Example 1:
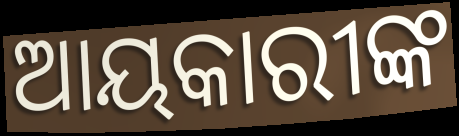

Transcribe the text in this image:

ଆୟକାରୀଙ୍କ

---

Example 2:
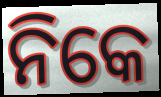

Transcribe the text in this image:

ନିକେ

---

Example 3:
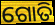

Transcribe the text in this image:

ଗୋତି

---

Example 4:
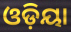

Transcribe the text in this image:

ଓଡ଼ିୟା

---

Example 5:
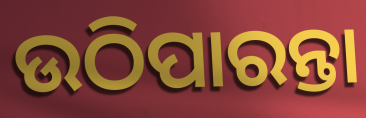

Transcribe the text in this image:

ଉଠିପାରନ୍ତା